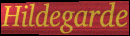
Hildegarde